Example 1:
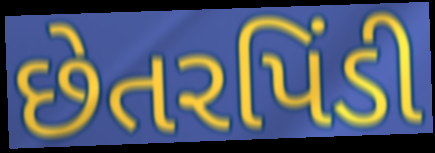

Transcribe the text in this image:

છેતરપિંડી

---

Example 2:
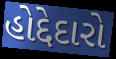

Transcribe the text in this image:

હોદ્દેદારો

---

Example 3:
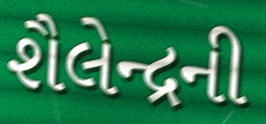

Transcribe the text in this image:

શૈલેન્દ્રની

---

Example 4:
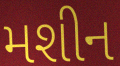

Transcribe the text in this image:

મશીન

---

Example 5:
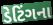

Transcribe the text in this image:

ડેટિંગના